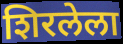
शिरलेला